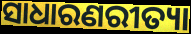
ସାଧାରଣରୀତ୍ୟା